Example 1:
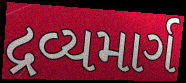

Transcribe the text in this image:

દ્રવ્યમાર્ગ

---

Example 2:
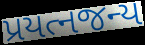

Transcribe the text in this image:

પ્રયત્નજન્ય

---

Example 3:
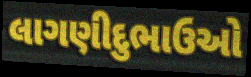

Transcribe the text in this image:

લાગણીદુભાઉઓ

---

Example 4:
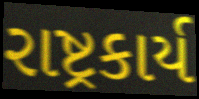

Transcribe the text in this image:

રાષ્ટ્રકાર્ય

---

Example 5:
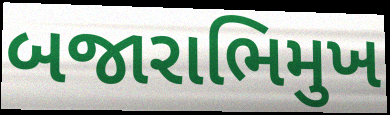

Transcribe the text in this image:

બજારાભિમુખ